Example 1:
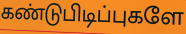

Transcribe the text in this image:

கண்டுபிடிப்புகளே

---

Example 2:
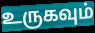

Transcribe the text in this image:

உருகவும்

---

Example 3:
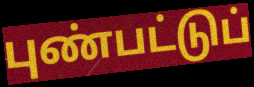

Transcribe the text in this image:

புண்பட்டுப்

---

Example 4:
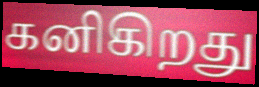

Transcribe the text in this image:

கனிகிறது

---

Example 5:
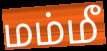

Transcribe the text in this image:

மம்மீ